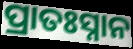
ପ୍ରାତଃସ୍ନାନ